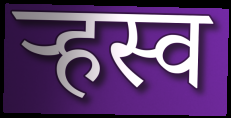
ऱ्हस्व